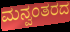
ಮನ್ವಂತರದ